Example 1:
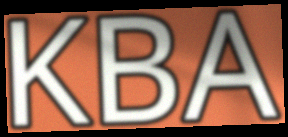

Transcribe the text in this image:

KBA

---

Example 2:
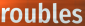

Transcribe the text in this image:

roubles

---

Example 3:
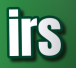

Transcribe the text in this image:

irs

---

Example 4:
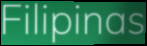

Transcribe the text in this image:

Filipinas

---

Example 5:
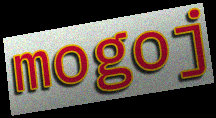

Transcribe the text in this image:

mogoj